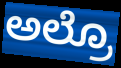
ಅಲ್ರೊ